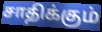
சாதிக்கும்